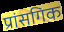
प्रांसगिक